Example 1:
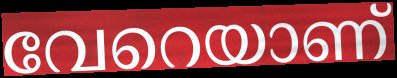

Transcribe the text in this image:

വേറെയാണ്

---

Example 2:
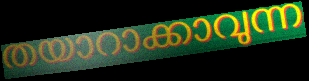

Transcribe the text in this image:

തയാറാക്കാവുന്ന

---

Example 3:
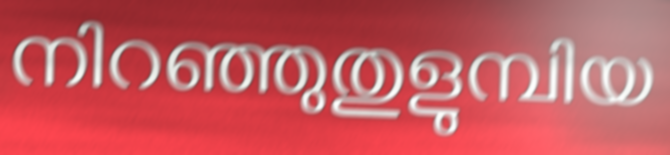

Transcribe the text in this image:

നിറഞ്ഞുതുളുമ്പിയ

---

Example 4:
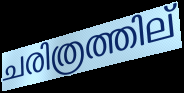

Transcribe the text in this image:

ചരിത്രത്തില്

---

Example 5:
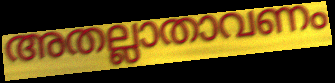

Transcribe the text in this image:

അതല്ലാതാവണം